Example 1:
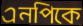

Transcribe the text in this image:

এনপিকে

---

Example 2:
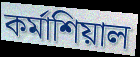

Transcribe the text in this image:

কর্মাশিয়াল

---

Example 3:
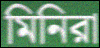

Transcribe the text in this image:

মিনিরা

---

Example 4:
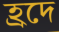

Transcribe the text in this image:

হ্রদে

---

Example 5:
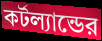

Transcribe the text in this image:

কর্টল্যান্ডের